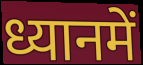
ध्यानमें